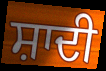
ਸ਼ਾਦੀ